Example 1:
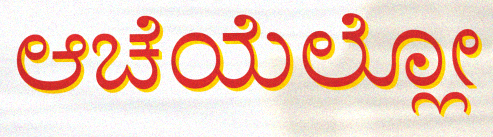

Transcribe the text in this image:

ಆಚೆಯೆಲ್ಲೋ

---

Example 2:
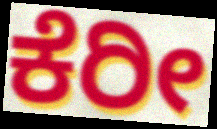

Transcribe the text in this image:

ಕೆರೀ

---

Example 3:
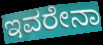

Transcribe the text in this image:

ಇವರೇನಾ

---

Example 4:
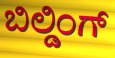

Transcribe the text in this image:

ಬಿಲ್ಡಿಂಗ್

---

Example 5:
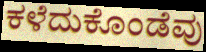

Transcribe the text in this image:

ಕಳೆದುಕೊಂಡೆವು